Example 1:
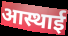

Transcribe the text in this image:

आस्थाई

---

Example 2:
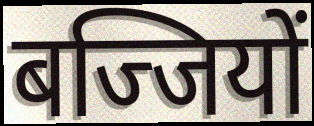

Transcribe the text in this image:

बज्जियों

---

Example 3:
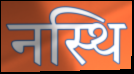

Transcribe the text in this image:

नस्थि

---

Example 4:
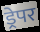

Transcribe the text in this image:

ड्रेपर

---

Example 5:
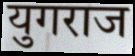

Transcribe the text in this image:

युगराज